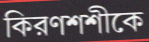
কিরণশশীকে